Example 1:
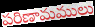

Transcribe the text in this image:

పరిణామములు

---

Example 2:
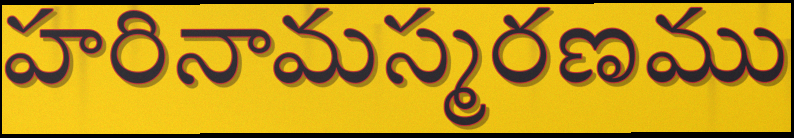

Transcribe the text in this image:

హరినామస్మరణము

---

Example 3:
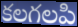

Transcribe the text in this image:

కలగలపి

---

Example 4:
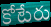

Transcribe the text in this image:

కోటేరు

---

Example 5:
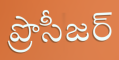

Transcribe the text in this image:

ప్రొసీజర్